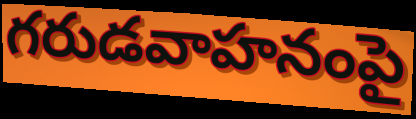
గరుడవాహనంపై